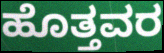
ಹೊತ್ತವರ